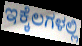
ಇಕ್ಕೆಲಗಳಲ್ಲಿ